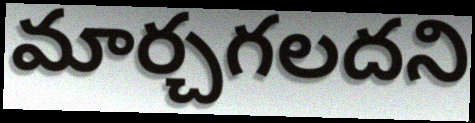
మార్చగలదని